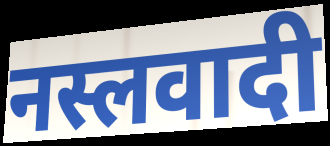
नस्लवादी